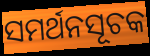
ସମର୍ଥନସୂଚକ